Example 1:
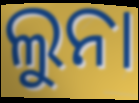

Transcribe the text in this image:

ଲୁନା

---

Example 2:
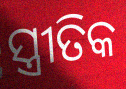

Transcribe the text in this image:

ସ୍ତ୍ରୀତିକ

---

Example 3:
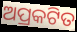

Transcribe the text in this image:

ଅପ୍ରକଟିତ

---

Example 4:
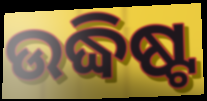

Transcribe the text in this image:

ଉଦ୍ଧିଷ୍ଟ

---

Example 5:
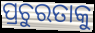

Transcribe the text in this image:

ପ୍ରଚୁରତାକୁ